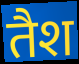
तैश